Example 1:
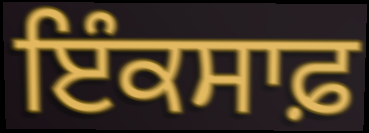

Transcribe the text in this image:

ਇੰਕਸਾਫ਼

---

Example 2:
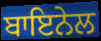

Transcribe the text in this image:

ਬਾਇਨੇਲ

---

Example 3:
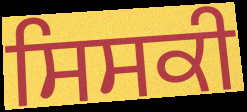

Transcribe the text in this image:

ਸਿਸਕੀ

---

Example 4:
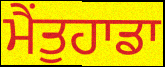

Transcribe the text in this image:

ਮੈਂਤੁਹਾਡਾ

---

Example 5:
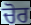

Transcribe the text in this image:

ਚੋਰ